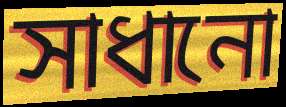
সাধানো